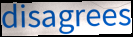
disagrees